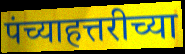
पंच्याहत्तरीच्या